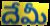
దేమీ